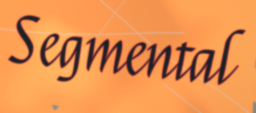
Segmental